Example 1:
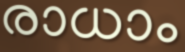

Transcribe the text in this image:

രാധാം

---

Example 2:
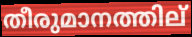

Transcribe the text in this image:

തീരുമാനത്തില്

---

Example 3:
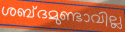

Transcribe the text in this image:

ശബ്ദമുണ്ടാവില്ല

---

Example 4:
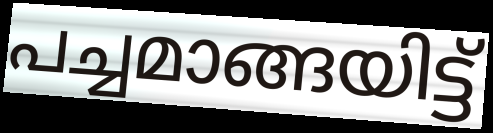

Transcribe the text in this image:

പച്ചമാങ്ങയിട്ട്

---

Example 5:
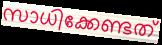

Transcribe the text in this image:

സാധിക്കേണ്ടത്